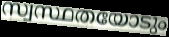
സ്വസ്ഥതയോടും